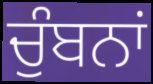
ਚੁੰਬਨਾਂ